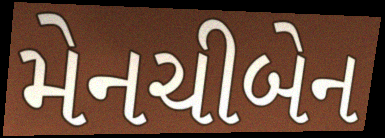
મેનચીબેન